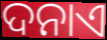
ଦନାଏ